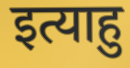
इत्याहु